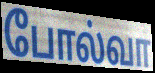
போல்வா